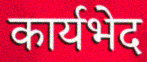
कार्यभेद